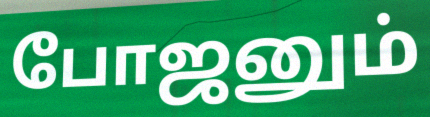
போஜனும்